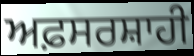
ਅਫ਼ਸਰਸ਼ਾਹੀ